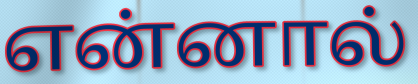
என்னால்